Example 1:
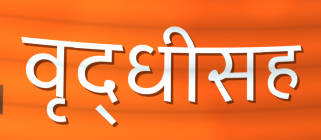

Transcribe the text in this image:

वृद्धीसह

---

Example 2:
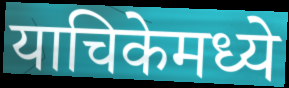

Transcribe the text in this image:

याचिकेमध्ये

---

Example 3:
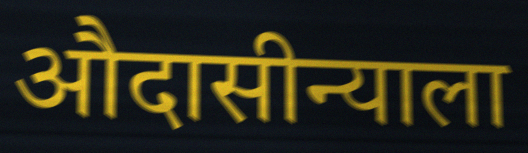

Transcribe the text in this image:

औदासीन्याला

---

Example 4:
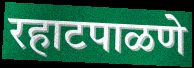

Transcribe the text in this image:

रहाटपाळणे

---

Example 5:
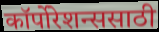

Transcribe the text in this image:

कॉर्पोरेशन्ससाठी